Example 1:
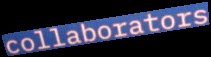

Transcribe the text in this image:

collaborators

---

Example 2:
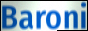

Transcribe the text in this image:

Baroni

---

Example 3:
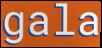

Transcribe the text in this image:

gala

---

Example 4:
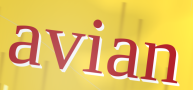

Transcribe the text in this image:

avian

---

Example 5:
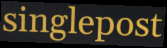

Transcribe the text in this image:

singlepost